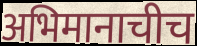
अभिमानाचीच